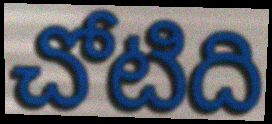
చోటిది